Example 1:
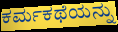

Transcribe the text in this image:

ಕರ್ಮಕಥೆಯನ್ನು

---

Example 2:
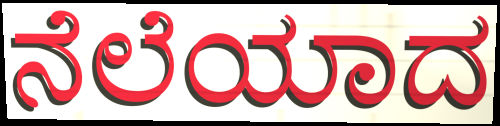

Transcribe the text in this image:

ನೆಲೆಯಾದ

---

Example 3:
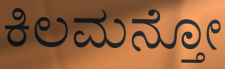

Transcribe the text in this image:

ಕಿಲಮನ್ತೋ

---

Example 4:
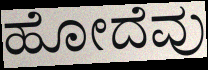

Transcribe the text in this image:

ಹೋದೆವು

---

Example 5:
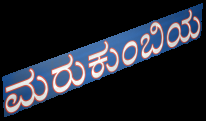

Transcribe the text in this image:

ಮರುಕುಂಬಿಯ